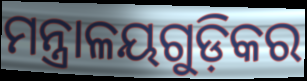
ମନ୍ତ୍ରାଳୟଗୁଡ଼ିକର